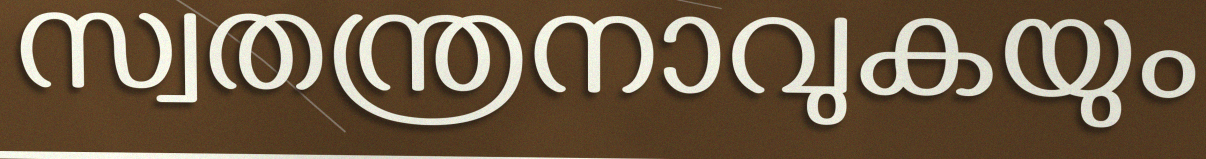
സ്വതന്ത്രനാവുകയും